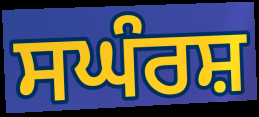
ਸਘੰਰਸ਼